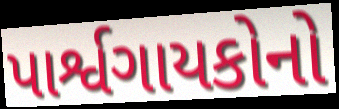
પાર્શ્વગાયકોનો